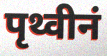
पृथ्वीनं